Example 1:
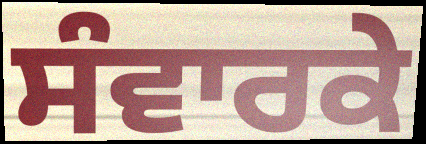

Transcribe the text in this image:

ਸੰਵਾਰਕੇ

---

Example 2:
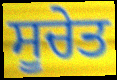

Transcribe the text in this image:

ਸੂਚੇਤ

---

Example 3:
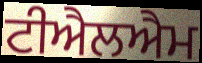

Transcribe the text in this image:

ਟੀਐਲਐਮ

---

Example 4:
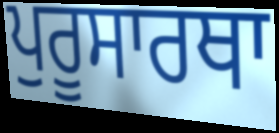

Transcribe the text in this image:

ਪੁਰੂਸਾਰਥਾ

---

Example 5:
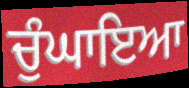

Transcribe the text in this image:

ਚੁੰਘਾਇਆ